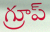
గ్రూప్